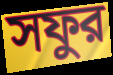
সফুর